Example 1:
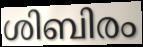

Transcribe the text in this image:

ശിബിരം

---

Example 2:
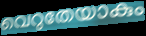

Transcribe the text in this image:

വെറുതേയാകും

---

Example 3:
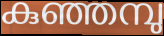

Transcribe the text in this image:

കുഞ്ഞമ്പു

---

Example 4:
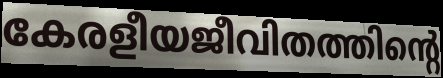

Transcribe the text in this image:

കേരളീയജീവിതത്തിന്റെ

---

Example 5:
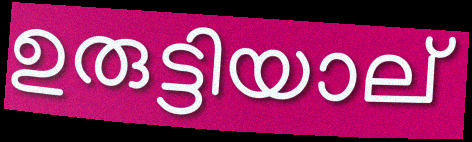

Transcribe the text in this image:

ഉരുട്ടിയാല്